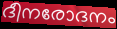
ദീനരോദനം